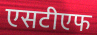
एसटीएफ